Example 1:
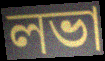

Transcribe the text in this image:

লভা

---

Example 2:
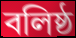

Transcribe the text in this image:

বলিষ্ঠ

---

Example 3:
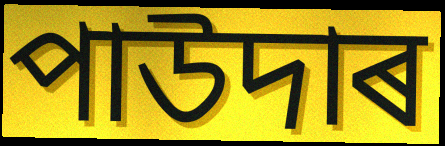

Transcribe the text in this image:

পাউদাৰ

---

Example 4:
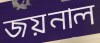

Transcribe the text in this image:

জয়নাল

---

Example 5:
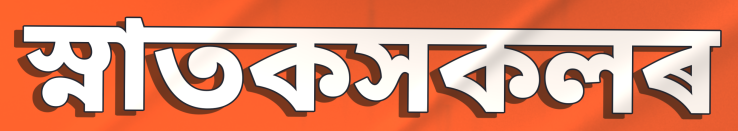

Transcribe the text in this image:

স্নাতকসকলৰ